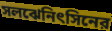
সলঝেনিৎসিনের